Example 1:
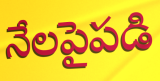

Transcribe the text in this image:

నేలపైపడి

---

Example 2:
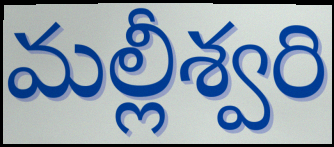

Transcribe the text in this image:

మల్లీశ్వరి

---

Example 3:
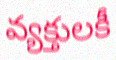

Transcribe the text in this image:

వ్యక్తులకీ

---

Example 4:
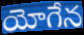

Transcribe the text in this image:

యోగేన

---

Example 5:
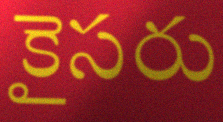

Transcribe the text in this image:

కైసరు